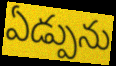
ఏడ్పును